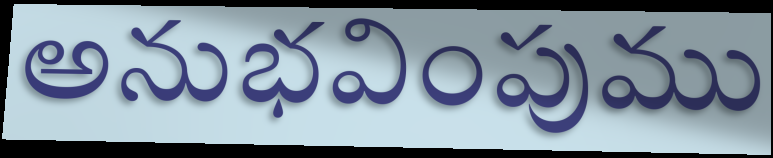
అనుభవింపుము